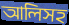
আলিসহ